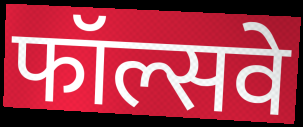
फॉल्सवे